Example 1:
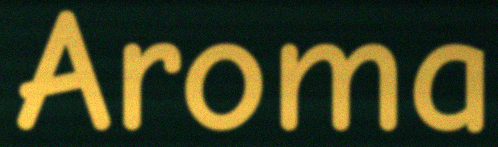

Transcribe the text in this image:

Aroma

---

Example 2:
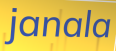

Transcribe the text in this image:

janala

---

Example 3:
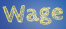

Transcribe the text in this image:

Wage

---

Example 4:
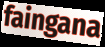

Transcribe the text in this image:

faingana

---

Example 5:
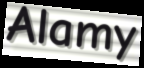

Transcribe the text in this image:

Alamy